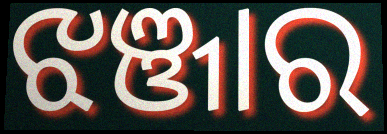
ଝଞ୍ଜାର